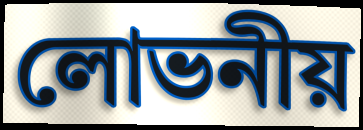
লোভনীয়